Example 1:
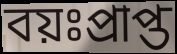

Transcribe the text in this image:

বয়ঃপ্রাপ্ত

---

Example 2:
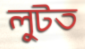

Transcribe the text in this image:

লুটত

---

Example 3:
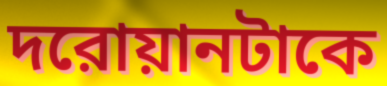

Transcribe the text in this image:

দরোয়ানটাকে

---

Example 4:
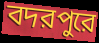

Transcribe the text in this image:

বদরপুরে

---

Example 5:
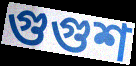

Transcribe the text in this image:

গুগুশ